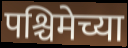
पश्चिमेच्या